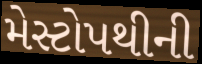
મેસ્ટોપથીની